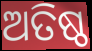
ଅତିଷ୍ଠ